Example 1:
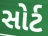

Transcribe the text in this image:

સોર્ટ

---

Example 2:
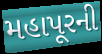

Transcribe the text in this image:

મહાપૂરની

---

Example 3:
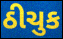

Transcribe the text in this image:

ઠીચુક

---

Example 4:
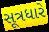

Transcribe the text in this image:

સૂત્રધારે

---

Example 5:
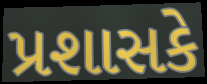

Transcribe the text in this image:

પ્રશાસકે